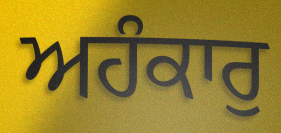
ਅਹੰਕਾਰੁ